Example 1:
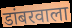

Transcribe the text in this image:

डांबरवाला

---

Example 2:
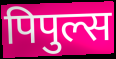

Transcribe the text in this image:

पिपुल्स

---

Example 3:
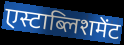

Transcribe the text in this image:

एस्टाब्लिशमेंट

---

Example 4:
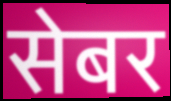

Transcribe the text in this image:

सेबर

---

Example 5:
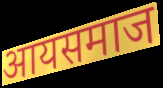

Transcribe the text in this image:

आयसमाज